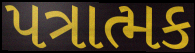
પત્રાત્મક